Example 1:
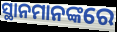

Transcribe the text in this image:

ସ୍ଥାନମାନଙ୍କରେ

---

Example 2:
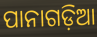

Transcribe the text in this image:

ପାନାଗଡ଼ିଆ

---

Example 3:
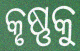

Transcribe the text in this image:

କୃଷ୍ଣକୁ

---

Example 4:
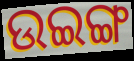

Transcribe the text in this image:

ଉଇଙ୍ଗ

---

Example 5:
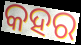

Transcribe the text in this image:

କହର